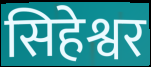
सिहेश्वर